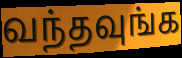
வந்தவுங்க